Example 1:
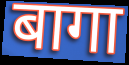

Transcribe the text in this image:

बागा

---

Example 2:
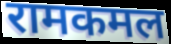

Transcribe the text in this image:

रामकमल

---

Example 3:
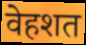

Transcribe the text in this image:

वेहशत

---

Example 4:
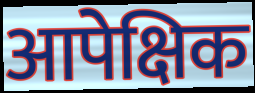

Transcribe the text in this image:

आपेक्षिक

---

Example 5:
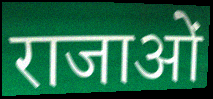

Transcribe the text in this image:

राजाओं